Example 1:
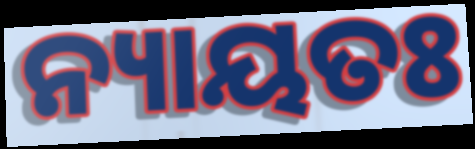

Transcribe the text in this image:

ନ୍ୟାୟତଃ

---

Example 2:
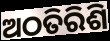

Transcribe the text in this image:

ଅଠତିରିଶି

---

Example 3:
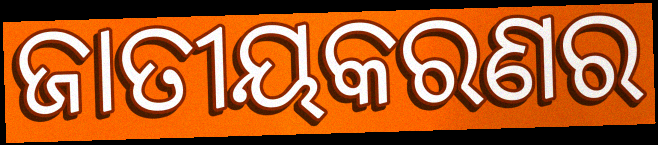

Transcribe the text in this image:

ଜାତୀୟକରଣର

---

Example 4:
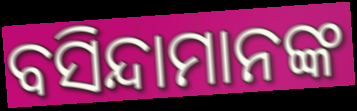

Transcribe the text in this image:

ବସିନ୍ଦାମାନଙ୍କ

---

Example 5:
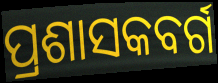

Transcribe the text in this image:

ପ୍ରଶାସକବର୍ଗ